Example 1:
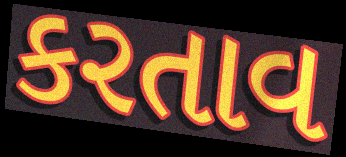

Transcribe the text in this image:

કરતાવ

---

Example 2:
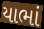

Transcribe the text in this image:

યાભાં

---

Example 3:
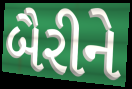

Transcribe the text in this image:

બૈરીને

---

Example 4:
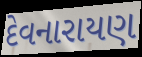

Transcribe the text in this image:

દેવનારાયણ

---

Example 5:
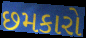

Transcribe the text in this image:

છમકારો